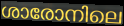
ശാരോനിലെ